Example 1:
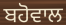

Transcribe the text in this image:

ਬਹੋਵਾਲ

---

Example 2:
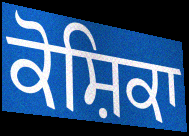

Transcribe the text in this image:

ਕੋਸ਼ਿਕਾ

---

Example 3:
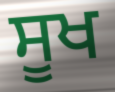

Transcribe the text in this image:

ਸੂਖ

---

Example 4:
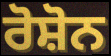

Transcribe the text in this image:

ਰੋਸ਼ੋਨ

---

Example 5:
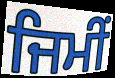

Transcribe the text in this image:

ਜਿਮੀਂ